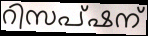
റിസപ്ഷന്